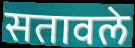
सतावले